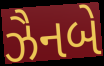
ઝૈનબે